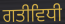
ਗਤੀਵਿਧੀ